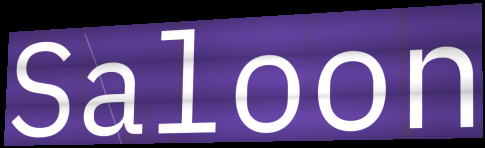
Saloon